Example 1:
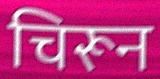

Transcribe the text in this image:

चिरून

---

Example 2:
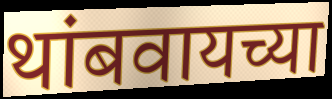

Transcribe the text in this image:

थांबवायच्या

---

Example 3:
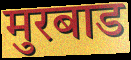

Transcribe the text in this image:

मुरबाड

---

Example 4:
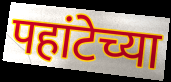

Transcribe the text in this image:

पहांटेच्या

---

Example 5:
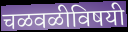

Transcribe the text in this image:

चळवळीविषयी